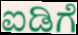
ಐಡಿಗೆ